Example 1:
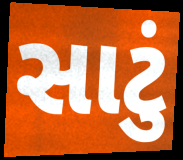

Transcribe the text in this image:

સાટું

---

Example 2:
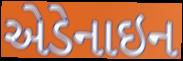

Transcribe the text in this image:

એડેનાઇન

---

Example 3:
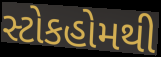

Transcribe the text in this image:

સ્ટોકહોમથી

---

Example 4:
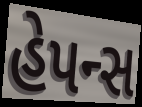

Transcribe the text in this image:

હેપન્સ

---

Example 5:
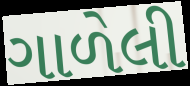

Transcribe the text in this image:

ગાળેલી